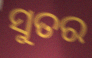
ସୁତର